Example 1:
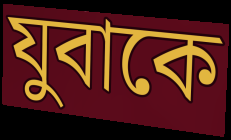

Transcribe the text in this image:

যুবাকে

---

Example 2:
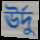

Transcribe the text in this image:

ঊর্দু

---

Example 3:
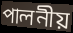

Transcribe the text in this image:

পালনীয়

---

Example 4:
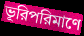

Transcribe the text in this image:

ভূরিপরিমাণে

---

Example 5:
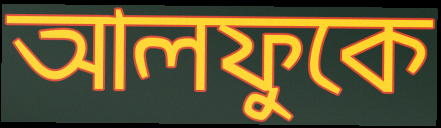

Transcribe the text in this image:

আলফুকে